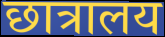
छात्रालय